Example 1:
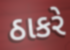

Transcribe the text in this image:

ઠાકરે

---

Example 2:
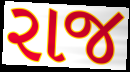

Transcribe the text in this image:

રાજ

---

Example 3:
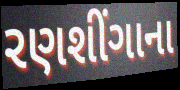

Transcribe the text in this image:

રણશીંગાના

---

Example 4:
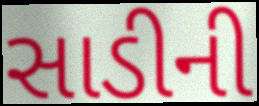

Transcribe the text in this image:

સાડીની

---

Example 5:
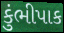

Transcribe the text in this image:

કુંભીપાક